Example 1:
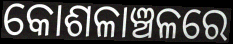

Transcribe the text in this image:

କୋଶଳାଞ୍ଚଳରେ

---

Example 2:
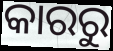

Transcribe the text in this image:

କାରରୁ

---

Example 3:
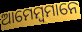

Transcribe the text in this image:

ଆମେମ୍ବମାନେ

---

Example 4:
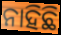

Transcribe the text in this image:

ନାହିଛି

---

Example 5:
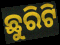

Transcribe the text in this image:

ଛୁରିଟି